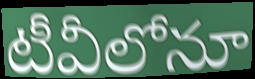
టీవీలోనూ